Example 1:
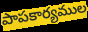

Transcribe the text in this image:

పాపకార్యముల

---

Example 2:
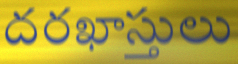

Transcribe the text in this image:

దరఖాస్తులు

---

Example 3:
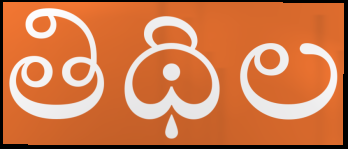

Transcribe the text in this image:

తిథిల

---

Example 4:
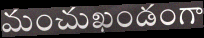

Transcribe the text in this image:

మంచుఖండంగా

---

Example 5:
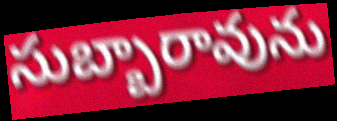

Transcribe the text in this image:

సుబ్బారావును